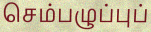
செம்பழுப்புப்